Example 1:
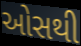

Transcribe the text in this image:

ઓસથી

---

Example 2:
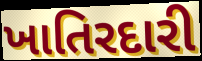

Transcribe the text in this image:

ખાતિરદારી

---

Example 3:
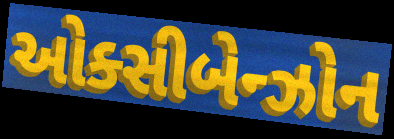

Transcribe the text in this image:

ઓક્સીબેન્ઝોન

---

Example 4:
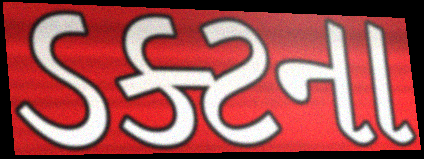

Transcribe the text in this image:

ડક્ટના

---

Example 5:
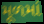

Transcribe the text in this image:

મૂળમાં